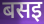
बसइ